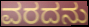
ವರದನು